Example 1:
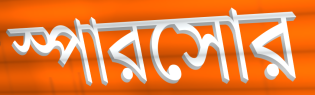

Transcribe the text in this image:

স্পারসোর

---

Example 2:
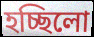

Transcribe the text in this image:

হচ্ছিলো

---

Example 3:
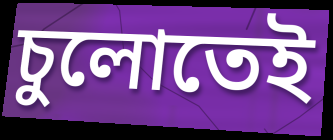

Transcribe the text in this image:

চুলোতেই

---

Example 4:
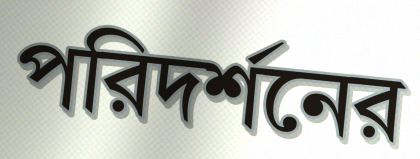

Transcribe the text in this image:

পরিদর্শনের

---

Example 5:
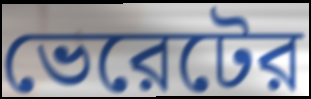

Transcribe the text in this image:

ভেরেটের